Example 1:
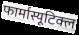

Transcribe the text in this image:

फार्मास्यूटिक्ल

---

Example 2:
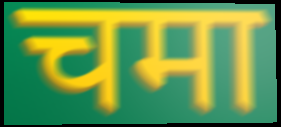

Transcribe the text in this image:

चमा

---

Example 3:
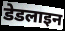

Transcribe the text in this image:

डेडलाइन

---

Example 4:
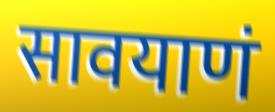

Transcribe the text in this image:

सावयाणं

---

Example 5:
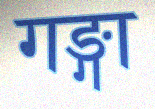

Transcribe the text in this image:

गङ्गा